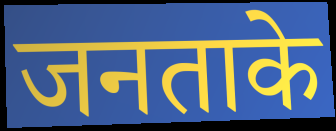
जनताके